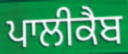
ਪਾਲੀਕੈਬ